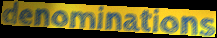
denominations